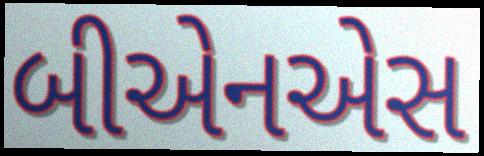
બીએનએસ